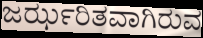
ಜರ್ಝರಿತವಾಗಿರುವ